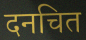
दनचित